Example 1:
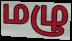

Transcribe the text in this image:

மழு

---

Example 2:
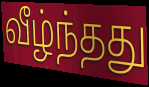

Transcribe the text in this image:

வீழ்ந்தது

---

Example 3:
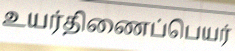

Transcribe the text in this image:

உயர்திணைப்பெயர்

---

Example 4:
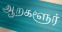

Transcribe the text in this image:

ஆறகளூர்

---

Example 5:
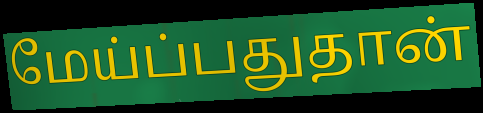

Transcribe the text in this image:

மேய்ப்பதுதான்